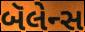
બૅલેન્સ